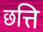
छत्ति